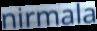
nirmala